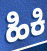
ಹಿಕಿ